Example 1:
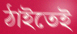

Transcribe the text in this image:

ঠাইতেই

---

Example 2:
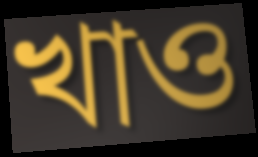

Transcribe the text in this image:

খাও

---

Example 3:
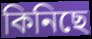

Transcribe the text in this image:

কিনিছে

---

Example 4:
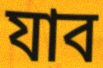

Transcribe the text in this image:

যাব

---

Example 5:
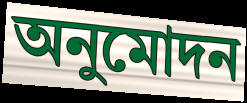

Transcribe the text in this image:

অনুমোদন